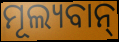
ମୂଲ୍ୟବାନ୍